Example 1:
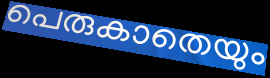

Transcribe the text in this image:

പെരുകാതെയും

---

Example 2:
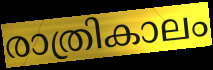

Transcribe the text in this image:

രാത്രികാലം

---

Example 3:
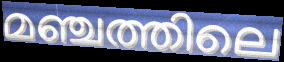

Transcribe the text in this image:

മഞ്ചത്തിലെ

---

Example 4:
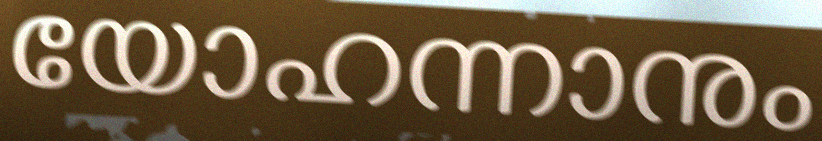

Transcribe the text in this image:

യോഹന്നാനും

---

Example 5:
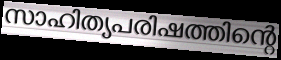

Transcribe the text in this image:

സാഹിത്യപരിഷത്തിന്റെ